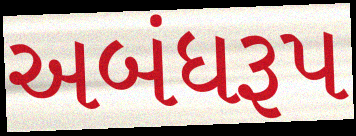
અબંધરૂપ